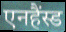
एनहैंस्ड